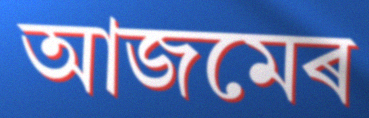
আজমেৰ